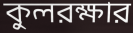
কুলরক্ষার